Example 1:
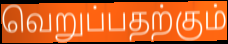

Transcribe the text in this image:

வெறுப்பதற்கும்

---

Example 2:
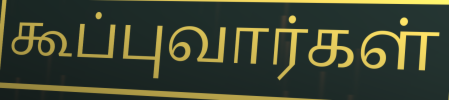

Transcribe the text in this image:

கூப்புவார்கள்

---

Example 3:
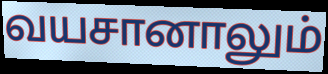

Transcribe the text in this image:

வயசானாலும்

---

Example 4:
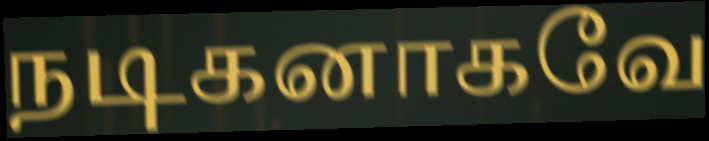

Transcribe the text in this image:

நடிகனாகவே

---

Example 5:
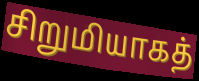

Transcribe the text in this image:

சிறுமியாகத்